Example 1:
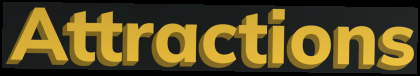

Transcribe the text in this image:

Attractions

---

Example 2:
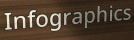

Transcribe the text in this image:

Infographics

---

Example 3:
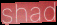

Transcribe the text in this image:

shad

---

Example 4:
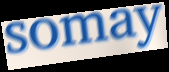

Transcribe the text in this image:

somay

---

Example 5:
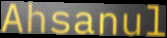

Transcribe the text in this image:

Ahsanul